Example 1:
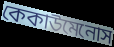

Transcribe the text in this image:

কেকাউমেনোস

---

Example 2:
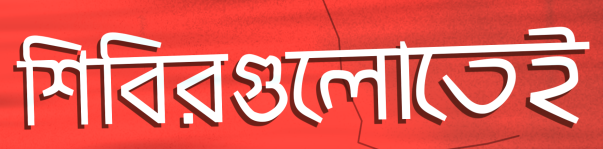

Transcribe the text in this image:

শিবিরগুলোতেই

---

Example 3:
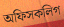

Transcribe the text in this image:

অফিসকলিগ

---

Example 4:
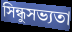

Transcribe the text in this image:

সিন্ধুসভ্যতা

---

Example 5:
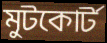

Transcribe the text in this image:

মুটকোর্ট